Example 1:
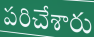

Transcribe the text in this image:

పరిచేశారు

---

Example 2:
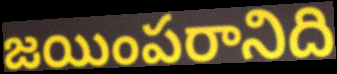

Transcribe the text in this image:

జయింపరానిది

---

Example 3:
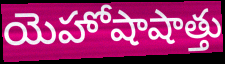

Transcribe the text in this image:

యెహోషాషాత్తు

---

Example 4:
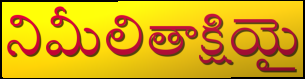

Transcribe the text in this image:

నిమీలితాక్షియై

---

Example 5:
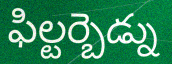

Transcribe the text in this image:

ఫిల్టర్బెడ్ను